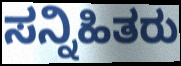
ಸನ್ನಿಹಿತರು